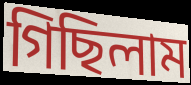
গিছিলাম